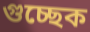
গুচ্ছেক